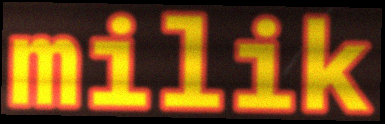
milik